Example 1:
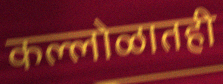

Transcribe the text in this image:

कल्लोळातही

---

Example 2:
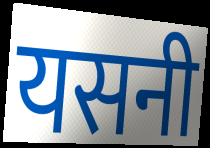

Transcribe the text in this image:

यसनी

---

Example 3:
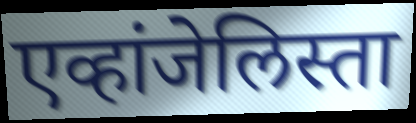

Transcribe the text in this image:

एव्हांजेलिस्ता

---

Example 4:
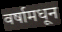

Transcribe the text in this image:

वर्षामधून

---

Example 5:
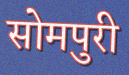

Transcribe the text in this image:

सोमपुरी